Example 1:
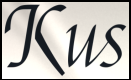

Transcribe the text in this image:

Kus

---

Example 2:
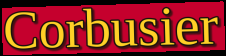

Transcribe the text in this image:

Corbusier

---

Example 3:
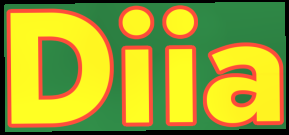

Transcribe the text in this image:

Diia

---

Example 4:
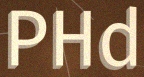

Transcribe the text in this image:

PHd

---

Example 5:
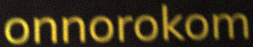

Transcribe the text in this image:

onnorokom